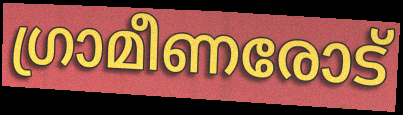
ഗ്രാമീണരോട്